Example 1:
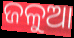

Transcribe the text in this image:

ଜଳୁଆ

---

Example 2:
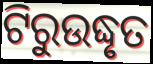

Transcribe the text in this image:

ଟିରୁଉଦ୍ଧୃତ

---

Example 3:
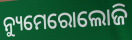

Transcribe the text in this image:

ନ୍ୟୁମେରୋଲୋଜି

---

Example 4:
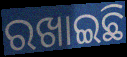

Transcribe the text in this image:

ରଖାଇଛି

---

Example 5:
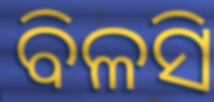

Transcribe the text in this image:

ବିଳସି